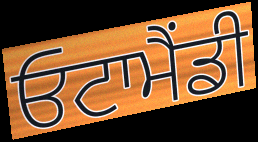
ਓਟਾਮੈਂਡੀ